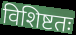
विशिष्टतः